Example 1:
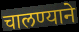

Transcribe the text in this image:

चालण्याने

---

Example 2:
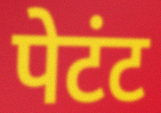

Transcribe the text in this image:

पेटंट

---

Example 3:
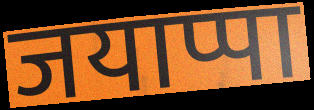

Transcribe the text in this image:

जयाप्पा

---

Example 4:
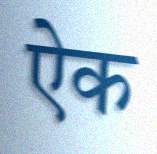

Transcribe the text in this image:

ऐक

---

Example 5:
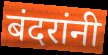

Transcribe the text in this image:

बंदरांनी